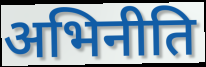
अभिनीति